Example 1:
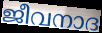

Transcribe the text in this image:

ജീവനാദ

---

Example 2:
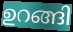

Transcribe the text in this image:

ഉറങ്ങി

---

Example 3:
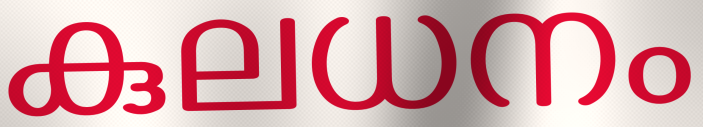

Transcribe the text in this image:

കുലധനം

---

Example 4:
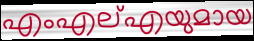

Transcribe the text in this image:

എംഎല്എയുമായ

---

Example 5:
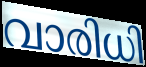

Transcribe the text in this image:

വാരിധി